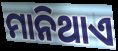
ମାନିଥାଏ